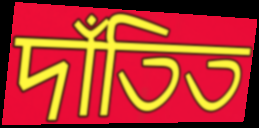
দাঁতিত